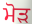
ਮੋੜ